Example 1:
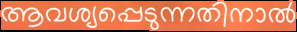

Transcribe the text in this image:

ആവശ്യപ്പെടുന്നതിനാൽ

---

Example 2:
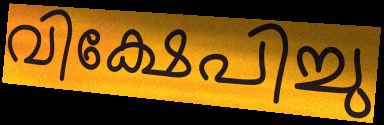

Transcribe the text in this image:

വിക്ഷേപിച്ചു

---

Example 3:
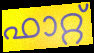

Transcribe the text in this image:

ഫാറ്റ്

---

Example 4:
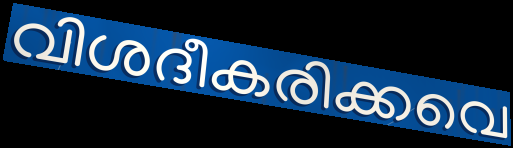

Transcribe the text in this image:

വിശദീകരിക്കവെ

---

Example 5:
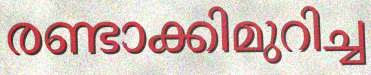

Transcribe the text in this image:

രണ്ടാക്കിമുറിച്ച